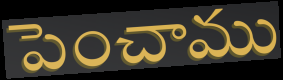
పెంచాము